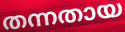
തന്നതായ